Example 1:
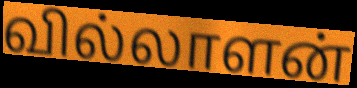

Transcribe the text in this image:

வில்லாளன்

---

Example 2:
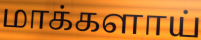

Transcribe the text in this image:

மாக்களாய்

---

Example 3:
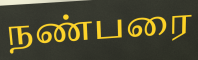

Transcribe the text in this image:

நண்பரை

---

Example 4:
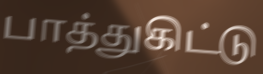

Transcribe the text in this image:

பாத்துகிட்டு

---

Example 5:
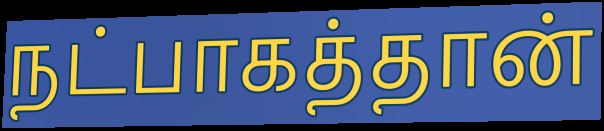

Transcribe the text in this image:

நட்பாகத்தான்